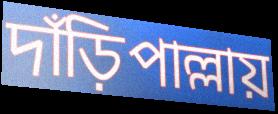
দাঁড়িপাল্লায়